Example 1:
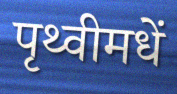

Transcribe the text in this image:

पृथ्वीमधें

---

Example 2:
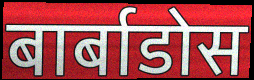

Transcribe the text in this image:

बार्बाडोस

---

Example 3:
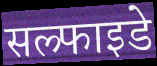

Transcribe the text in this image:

सल्फाइडे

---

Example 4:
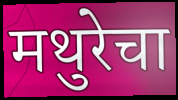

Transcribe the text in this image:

मथुरेचा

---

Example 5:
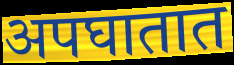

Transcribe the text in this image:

अपघातात